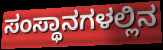
ಸಂಸ್ಥಾನಗಳಲ್ಲಿನ